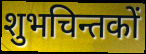
शुभचिन्तकों